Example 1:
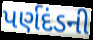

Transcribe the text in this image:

પર્ણદંડની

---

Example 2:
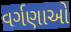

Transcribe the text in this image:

વર્ગણાઓ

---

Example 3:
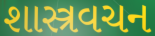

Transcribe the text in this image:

શાસ્ત્રવચન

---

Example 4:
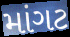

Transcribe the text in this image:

માંગટ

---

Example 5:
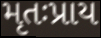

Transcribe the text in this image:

મૃતઃપ્રાય